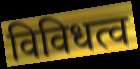
विविधत्व